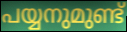
പയ്യനുമുണ്ട്